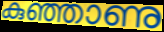
കുഞ്ഞാണു